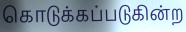
கொடுக்கப்படுகின்ற